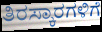
ತಿರಸ್ಕಾರಗಳಿಗೆ